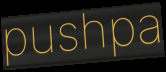
pushpa